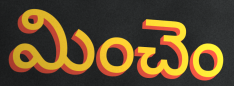
మించెం